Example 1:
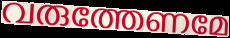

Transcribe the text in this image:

വരുത്തേണമേ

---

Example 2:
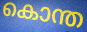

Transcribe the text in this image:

കൊന്ത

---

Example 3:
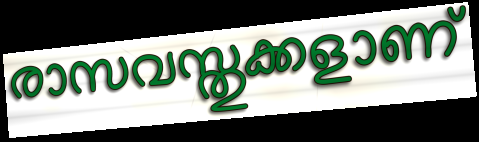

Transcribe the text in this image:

രാസവസ്തുക്കളാണ്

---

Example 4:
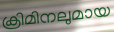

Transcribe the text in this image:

ക്രിമിനലുമായ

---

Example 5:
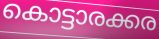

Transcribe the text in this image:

കൊട്ടാരക്കര